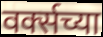
वर्क्‍सच्या